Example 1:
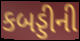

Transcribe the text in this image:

કબડ્ડીની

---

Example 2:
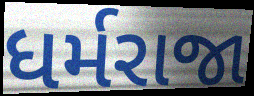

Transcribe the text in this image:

ધર્મરાજા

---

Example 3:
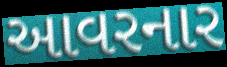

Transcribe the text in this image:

આવરનાર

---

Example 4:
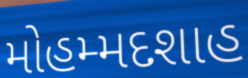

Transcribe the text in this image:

મોહમ્મદશાહ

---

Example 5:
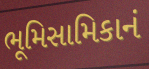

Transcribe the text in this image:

ભૂમિસામિકાનં